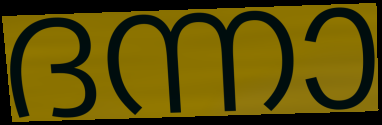
ദന്നാ